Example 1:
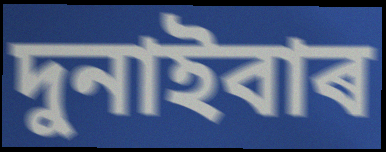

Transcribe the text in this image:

দুনাইবাৰ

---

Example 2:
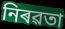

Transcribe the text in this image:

নিৰৱতা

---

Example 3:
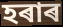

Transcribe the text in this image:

হৰাৰ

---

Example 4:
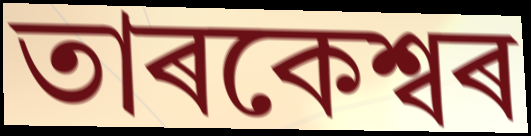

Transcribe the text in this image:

তাৰকেশ্বৰ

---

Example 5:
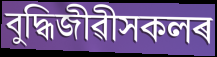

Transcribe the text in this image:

বুদ্ধিজীৱীসকলৰ